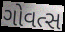
ગોવત્સ